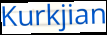
Kurkjian